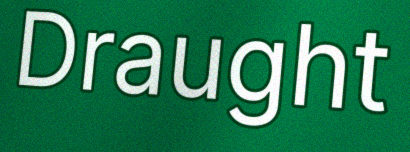
Draught